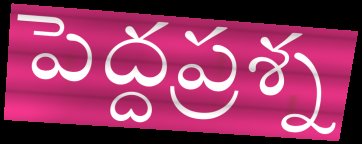
పెద్దప్రశ్న